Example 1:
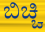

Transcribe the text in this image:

ಬಿಚ್ಚಿ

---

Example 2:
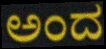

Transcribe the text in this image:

ಅಂದ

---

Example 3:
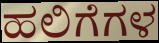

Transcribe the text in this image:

ಹಲಿಗೆಗಳ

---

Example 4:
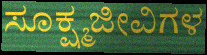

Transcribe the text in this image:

ಸೂಕ್ಷ್ಮಜೀವಿಗಳ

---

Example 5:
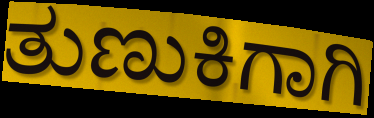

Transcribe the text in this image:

ತುಣುಕಿಗಾಗಿ